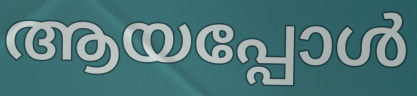
ആയപ്പോൾ